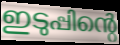
ഇടുപ്പിന്റെ